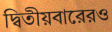
দ্বিতীয়বারেরও